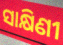
ସାକ୍ଷିଣୀ